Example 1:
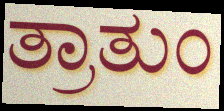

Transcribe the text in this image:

ತ್ರಾತುಂ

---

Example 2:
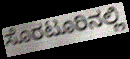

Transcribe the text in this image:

ಸೊರಟೂರಿನಲ್ಲಿ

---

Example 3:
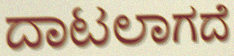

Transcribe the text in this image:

ದಾಟಲಾಗದೆ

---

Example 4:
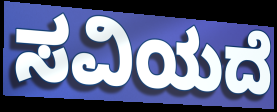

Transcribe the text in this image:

ಸವಿಯದೆ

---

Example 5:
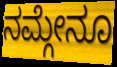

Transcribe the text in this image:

ನಮ್ಗೇನೂ